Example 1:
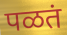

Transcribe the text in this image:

पळतं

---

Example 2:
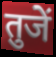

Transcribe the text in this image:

तुजें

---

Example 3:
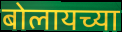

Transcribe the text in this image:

बोलायच्या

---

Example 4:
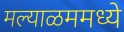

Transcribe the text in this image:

मल्याळममध्ये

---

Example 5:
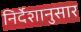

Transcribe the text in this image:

निर्देशानुसार